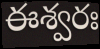
ఈశ్వరః